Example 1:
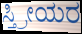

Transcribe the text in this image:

ಸ್ತ್ರೀಯರ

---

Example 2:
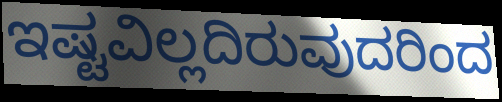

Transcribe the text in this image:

ಇಷ್ಟವಿಲ್ಲದಿರುವುದರಿಂದ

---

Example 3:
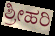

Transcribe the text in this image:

ಶ್ರೀಹರಿ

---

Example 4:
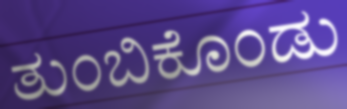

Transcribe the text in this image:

ತುಂಬಿಕೊಂಡು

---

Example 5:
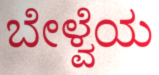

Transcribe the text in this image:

ಬೇಳ್ವೆಯ